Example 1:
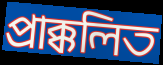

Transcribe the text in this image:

প্রাক্কলিত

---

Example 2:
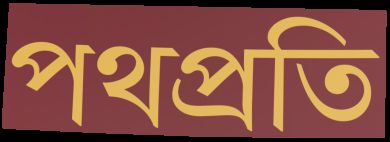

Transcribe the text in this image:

পথপ্রতি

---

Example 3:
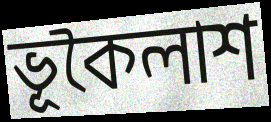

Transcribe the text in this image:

ভূকৈলাশ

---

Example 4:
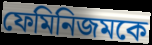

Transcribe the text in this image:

ফেমিনিজমকে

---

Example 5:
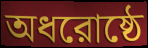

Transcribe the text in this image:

অধরোষ্ঠে